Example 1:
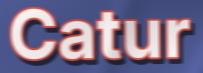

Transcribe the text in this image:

Catur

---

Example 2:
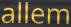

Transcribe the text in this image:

allem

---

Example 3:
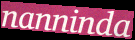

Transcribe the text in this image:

nanninda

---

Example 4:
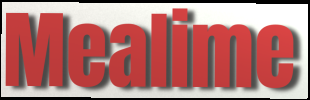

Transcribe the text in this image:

Mealime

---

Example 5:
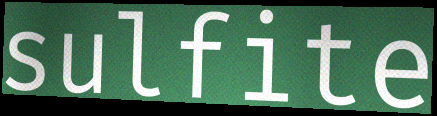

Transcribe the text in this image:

sulfite